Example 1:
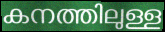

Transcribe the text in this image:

കനത്തിലുള്ള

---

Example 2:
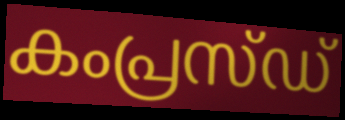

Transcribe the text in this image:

കംപ്രസ്ഡ്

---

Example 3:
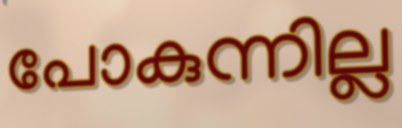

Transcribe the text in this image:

പോകുന്നില്ല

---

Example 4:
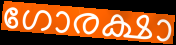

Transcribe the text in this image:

ഗോരക്ഷാ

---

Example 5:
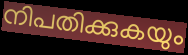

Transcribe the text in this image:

നിപതിക്കുകയും